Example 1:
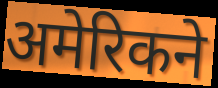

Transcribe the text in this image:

अमेरिकने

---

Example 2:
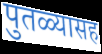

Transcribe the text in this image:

पुतळ्यासह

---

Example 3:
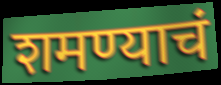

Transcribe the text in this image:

शमण्याचं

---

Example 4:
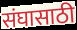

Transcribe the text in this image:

संघासाठी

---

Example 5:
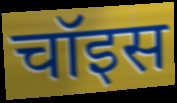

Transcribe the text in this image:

चॉइस